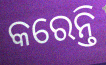
କରେନ୍ତି